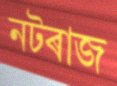
নটৰাজ